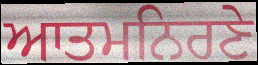
ਆਤਮਨਿਰਣੇ